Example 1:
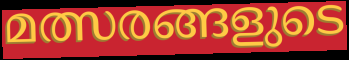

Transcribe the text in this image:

മത്സരങ്ങളുടെ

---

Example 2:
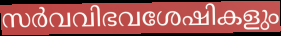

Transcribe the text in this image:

സർവവിഭവശേഷികളും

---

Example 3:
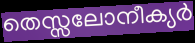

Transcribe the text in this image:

തെസ്സലോനീക്യർ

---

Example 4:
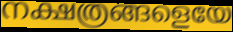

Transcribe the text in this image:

നക്ഷത്രങ്ങളെയേ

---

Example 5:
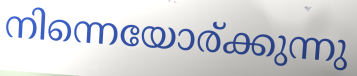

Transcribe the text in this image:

നിന്നെയോര്ക്കുന്നു